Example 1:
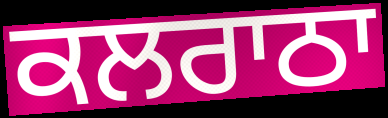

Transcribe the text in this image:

ਕਲਰਾਠਾ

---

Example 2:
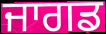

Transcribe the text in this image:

ਜਾਗਡ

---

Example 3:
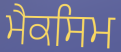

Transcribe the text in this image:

ਮੈਕਸਿਮ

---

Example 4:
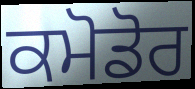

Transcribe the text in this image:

ਕਮੋਡੋਰ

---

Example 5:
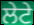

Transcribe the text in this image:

ਲੇਟੇ